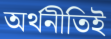
অর্থনীতিই